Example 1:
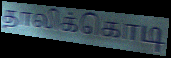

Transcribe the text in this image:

தாலிக்கொடி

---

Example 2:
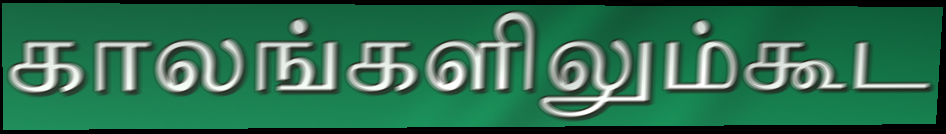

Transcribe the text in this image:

காலங்களிலும்கூட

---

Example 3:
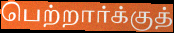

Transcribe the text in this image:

பெற்றார்க்குத்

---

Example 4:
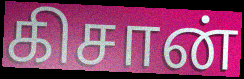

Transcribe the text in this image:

கிசான்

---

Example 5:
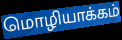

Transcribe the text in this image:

மொழியாக்கம்